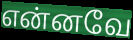
என்னவே